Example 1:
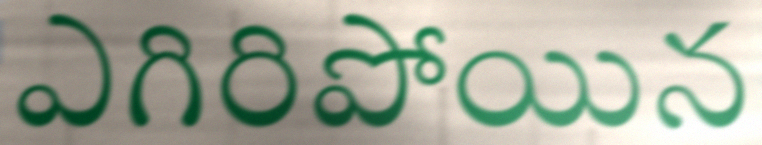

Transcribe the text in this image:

ఎగిరిపోయిన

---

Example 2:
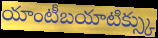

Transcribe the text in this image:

యాంటీబయాటిక్స్కు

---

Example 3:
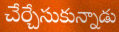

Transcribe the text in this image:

చేర్చేసుకున్నాడు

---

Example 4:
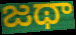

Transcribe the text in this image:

జథా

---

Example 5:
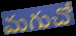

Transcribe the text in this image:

మగుచో